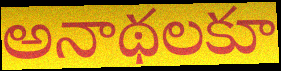
అనాథలకూ